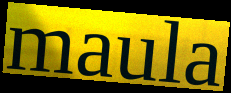
maula